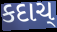
કદાચ્